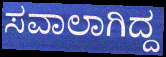
ಸವಾಲಾಗಿದ್ದ